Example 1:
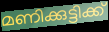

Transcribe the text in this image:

മണിക്കുട്ടിക്ക്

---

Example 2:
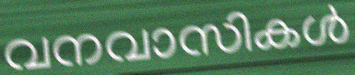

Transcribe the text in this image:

വനവാസികൾ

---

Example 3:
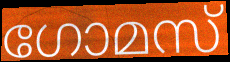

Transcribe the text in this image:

ഗോമസ്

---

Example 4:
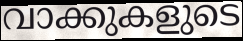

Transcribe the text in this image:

വാക്കുകളുടെ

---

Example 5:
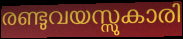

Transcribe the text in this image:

രണ്ടുവയസ്സുകാരി